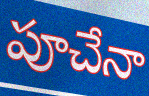
పూచేనా